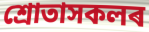
শ্ৰোতাসকলৰ